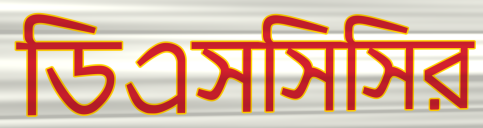
ডিএসসিসির